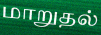
மாறுதல்